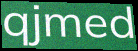
qjmed